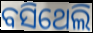
ବସିଥେଲି